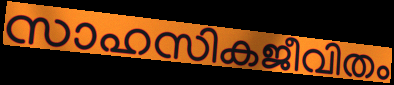
സാഹസികജീവിതം